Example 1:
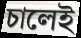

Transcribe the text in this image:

চালেই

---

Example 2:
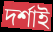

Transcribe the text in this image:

দৰ্শাই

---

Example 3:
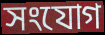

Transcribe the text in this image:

সংযোগ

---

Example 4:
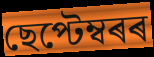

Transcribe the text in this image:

ছেপ্টেম্বৰৰ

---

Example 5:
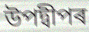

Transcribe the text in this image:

উপদ্বীপৰ